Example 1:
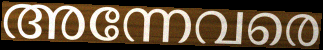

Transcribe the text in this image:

അന്നേവരെ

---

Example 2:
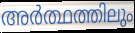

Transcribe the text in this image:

അർത്ഥത്തിലും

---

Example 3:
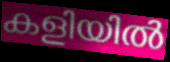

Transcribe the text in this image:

കളിയിൽ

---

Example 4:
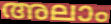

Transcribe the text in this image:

അലാം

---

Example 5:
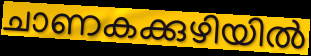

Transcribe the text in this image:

ചാണകക്കുഴിയിൽ